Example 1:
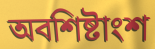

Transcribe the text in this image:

অবশিষ্টাংশ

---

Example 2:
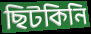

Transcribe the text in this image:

ছিটকিনি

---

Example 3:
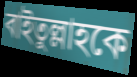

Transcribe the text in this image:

বাইতুল্লাহকে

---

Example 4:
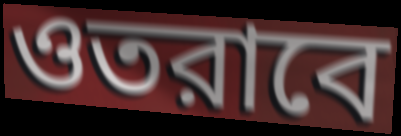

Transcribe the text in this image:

ওতরাবে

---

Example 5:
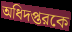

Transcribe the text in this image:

অধিদপ্তরকে